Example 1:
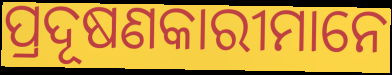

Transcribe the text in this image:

ପ୍ରଦୂଷଣକାରୀମାନେ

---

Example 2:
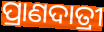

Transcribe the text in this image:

ପ୍ରାଣଦାତ୍ରୀ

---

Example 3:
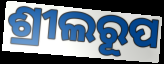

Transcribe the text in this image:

ଶ୍ରୀଲରୂପ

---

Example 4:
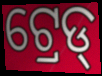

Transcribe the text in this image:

ଟ୍ରେଡ୍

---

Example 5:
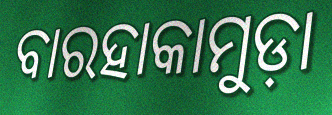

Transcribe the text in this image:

ବାରହାକାମୁଡ଼ା